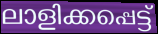
ലാളിക്കപ്പെട്ട്